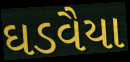
ઘડવૈયા